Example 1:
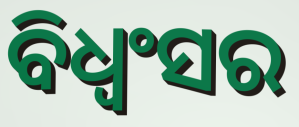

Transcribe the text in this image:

ବିଧ୍ୱଂସର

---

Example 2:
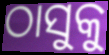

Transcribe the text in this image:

ଠାସୁକୁ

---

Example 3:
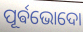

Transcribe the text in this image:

ପୂର୍ଵଭୋଦୋ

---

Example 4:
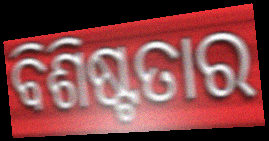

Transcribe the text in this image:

ବିଶିଷ୍ଟତାର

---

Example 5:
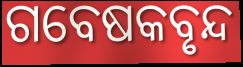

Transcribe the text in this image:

ଗବେଷକବୃନ୍ଦ